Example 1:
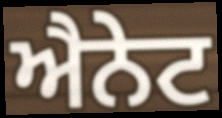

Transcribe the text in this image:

ਐਨੇਟ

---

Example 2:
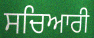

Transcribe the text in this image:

ਸਚਿਆਰੀ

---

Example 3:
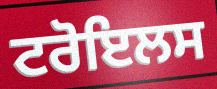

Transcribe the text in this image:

ਟਰੋਇਲਸ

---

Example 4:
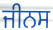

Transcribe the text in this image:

ਜੀਨਸ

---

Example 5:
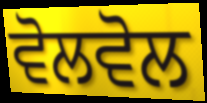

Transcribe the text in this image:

ਵੋਲਵੋਲ